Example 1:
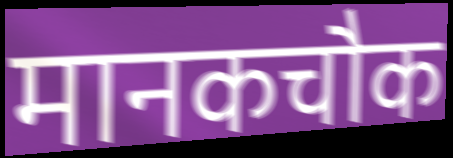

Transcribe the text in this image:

मानकचौक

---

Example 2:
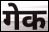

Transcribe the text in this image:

गेक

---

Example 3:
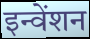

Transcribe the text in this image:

इन्वेंशन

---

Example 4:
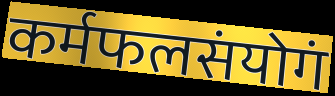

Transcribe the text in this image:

कर्मफलसंयोगं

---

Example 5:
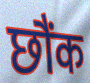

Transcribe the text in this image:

छौंक